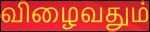
விழைவதும்